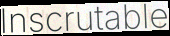
Inscrutable